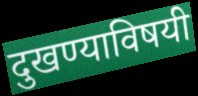
दुखण्याविषयी